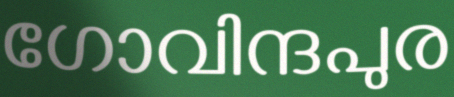
ഗോവിന്ദപുര